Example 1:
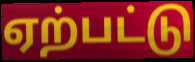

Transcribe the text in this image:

ஏற்பட்டு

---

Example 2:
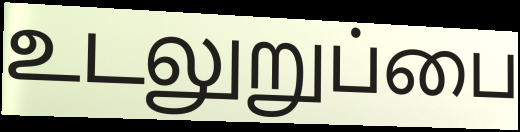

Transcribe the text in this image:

உடலுறுப்பை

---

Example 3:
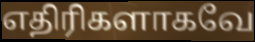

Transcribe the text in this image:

எதிரிகளாகவே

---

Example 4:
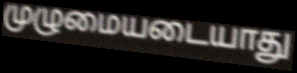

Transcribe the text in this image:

முழுமையடையாது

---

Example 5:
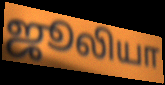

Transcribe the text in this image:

ஜூலியா